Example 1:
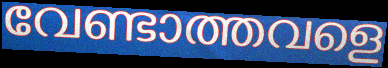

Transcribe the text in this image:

വേണ്ടാത്തവളെ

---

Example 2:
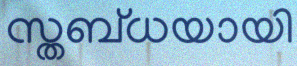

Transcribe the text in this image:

സ്തബ്ധയായി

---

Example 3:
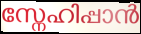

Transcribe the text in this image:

സ്നേഹിപ്പാൻ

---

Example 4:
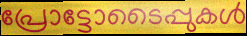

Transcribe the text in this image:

പ്രോട്ടോടൈപ്പുകൾ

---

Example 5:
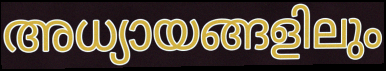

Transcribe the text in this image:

അധ്യായങ്ങളിലും